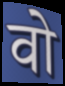
वो